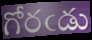
గోరఁడు